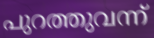
പുറത്തുവന്ന്